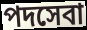
পদসেবা